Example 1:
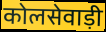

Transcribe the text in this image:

कोलसेवाड़ी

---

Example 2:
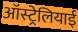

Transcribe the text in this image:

ऑस्‍ट्रेलियाई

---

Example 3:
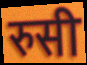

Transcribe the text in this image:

रुसी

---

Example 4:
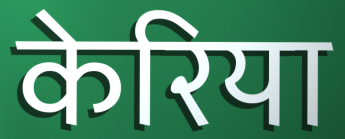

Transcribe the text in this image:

केरिया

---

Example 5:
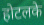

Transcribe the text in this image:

होटलके